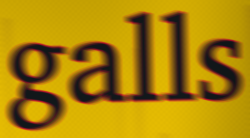
galls